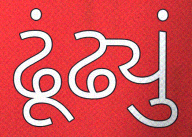
ઢૂંઢ્યું